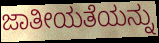
ಜಾತೀಯತೆಯನ್ನು